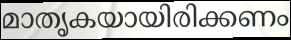
മാതൃകയായിരിക്കണം